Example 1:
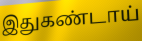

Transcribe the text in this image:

இதுகண்டாய்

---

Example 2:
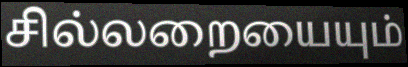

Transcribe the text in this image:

சில்லறையையும்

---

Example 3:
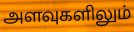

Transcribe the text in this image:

அளவுகளிலும்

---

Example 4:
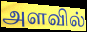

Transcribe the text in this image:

அளவில்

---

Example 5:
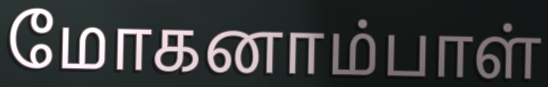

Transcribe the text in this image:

மோகனாம்பாள்